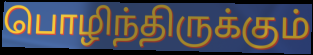
பொழிந்திருக்கும்